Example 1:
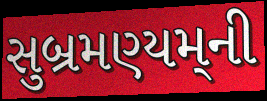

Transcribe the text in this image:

સુબ્રમણ્યમ્‌ની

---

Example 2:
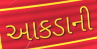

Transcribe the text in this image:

આકડાની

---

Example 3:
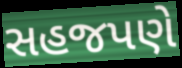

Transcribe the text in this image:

સહજપણે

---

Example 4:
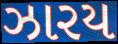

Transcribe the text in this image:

ઝારય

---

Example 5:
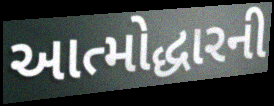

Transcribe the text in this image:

આત્મોદ્ધારની